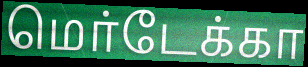
மெர்டேக்கா